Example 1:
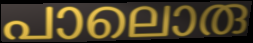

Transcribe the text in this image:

പാലൊരു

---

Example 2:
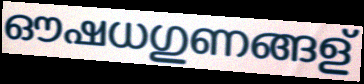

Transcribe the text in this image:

ഔഷധഗുണങ്ങള്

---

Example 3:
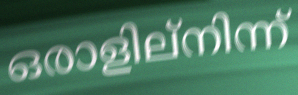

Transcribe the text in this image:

ഒരാളില്നിന്ന്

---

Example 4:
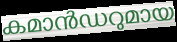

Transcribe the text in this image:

കമാൻഡറുമായ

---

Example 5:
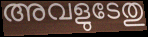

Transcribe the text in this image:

അവളുടേതു